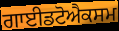
ਗਾਈਡਟੋਐਕਸਮ